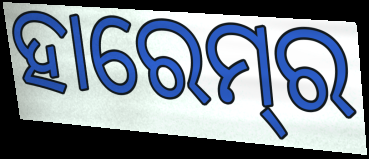
ହାରେମ୍‍ର